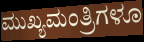
ಮುಖ್ಯಮಂತ್ರಿಗಳೂ